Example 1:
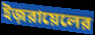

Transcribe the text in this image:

ইজ়রায়েলের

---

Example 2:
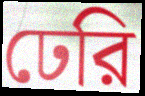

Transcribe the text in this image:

ঢেরি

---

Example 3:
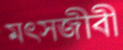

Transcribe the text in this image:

মৎসজীবী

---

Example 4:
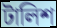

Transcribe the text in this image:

টালিশ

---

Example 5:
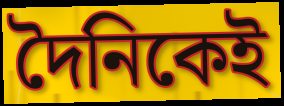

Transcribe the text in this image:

দৈনিকেই